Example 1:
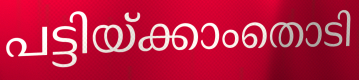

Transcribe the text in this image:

പട്ടിയ്ക്കാംതൊടി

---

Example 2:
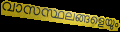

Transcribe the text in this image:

വാസസ്ഥലങ്ങളെയും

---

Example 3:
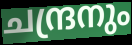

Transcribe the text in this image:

ചന്ദ്രനും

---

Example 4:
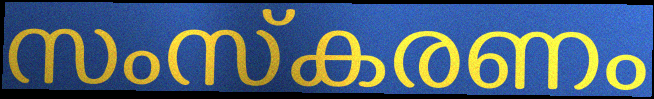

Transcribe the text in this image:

സംസ്‌കരണം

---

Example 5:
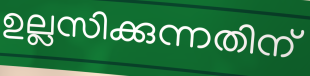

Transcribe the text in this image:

ഉല്ലസിക്കുന്നതിന്